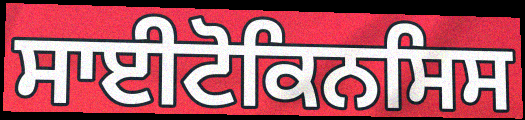
ਸਾਈਟੋਕਿਨਸਿਸ